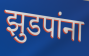
झुडपांना